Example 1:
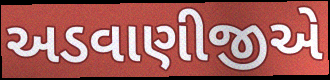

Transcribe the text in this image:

અડવાણીજીએ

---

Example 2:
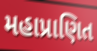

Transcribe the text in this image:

મહાપ્રાણિત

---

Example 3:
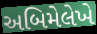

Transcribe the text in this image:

અબિમેલેખે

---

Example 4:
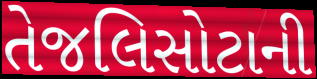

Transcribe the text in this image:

તેજલિસોટાની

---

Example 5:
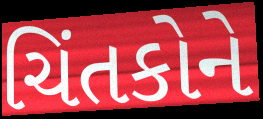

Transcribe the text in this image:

ચિંતકોને